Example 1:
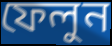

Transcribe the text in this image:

ফেলুন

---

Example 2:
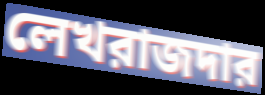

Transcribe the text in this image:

লেখরাজদার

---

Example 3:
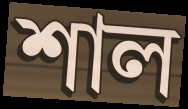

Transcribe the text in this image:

শাল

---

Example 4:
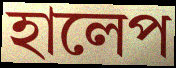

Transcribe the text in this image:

হালেপ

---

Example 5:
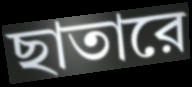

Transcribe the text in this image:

ছাতারে